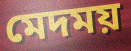
মেদময়